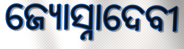
ଜ୍ୟୋସ୍ନାଦେବୀ